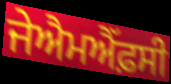
ਜੇਐਮਐੱਫ਼ਸੀ